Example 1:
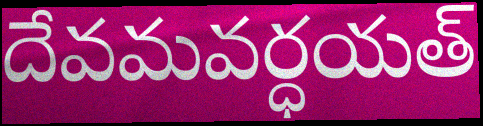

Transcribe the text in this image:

దేవమవర్ధయత్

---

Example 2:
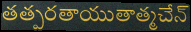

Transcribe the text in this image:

తత్పరతాయుతాత్మచేన్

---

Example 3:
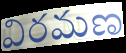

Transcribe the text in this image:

విరమణ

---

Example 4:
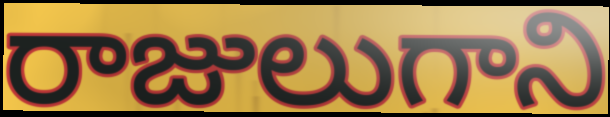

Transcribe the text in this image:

రాజులుగాని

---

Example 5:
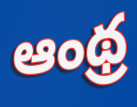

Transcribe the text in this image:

ఆంథ్ర